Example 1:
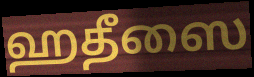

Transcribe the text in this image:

ஹதீஸை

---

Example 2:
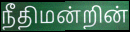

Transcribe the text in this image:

நீதிமன்றின்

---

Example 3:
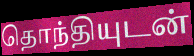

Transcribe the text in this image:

தொந்தியுடன்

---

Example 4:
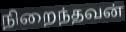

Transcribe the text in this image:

நிறைந்தவன்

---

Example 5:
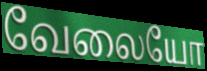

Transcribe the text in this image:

வேலையோ